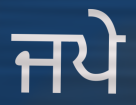
ਜਪੇ